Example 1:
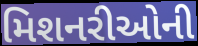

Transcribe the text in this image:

મિશનરીઓની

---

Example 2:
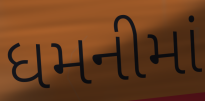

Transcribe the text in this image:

ધમનીમાં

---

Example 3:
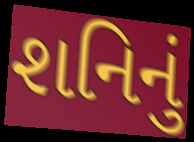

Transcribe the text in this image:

શનિનું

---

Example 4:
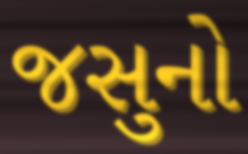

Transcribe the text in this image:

જસુનો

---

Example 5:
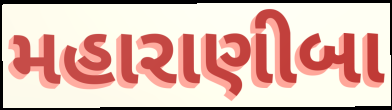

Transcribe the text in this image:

મહારાણીબા